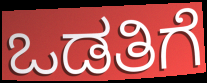
ಒಡತಿಗೆ